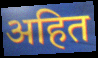
अहित